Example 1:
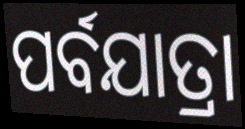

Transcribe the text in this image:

ପର୍ବଯାତ୍ରା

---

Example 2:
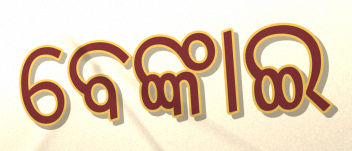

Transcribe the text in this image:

ବେଙ୍କାଇ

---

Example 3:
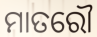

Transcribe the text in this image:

ମାତରୌ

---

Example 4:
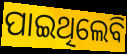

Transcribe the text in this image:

ପାଇଥିଲେବି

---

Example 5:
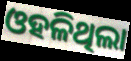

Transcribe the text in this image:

ଓହଳିଥିଲା